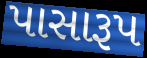
પાસારૂપ